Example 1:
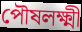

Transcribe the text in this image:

পৌষলক্ষ্মী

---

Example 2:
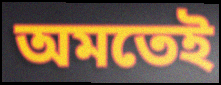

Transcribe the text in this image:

অমতেই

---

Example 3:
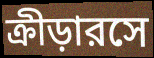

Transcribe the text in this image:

ক্রীড়ারসে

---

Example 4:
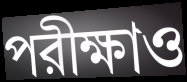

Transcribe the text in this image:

পরীক্ষাও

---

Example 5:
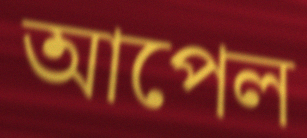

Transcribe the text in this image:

আপেল